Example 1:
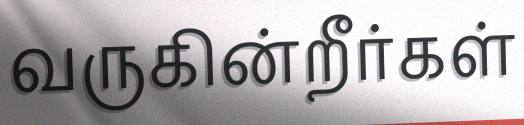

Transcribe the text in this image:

வருகின்றீர்கள்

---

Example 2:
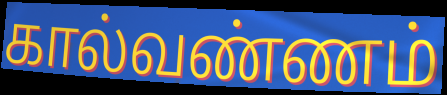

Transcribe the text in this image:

கால்வண்ணம்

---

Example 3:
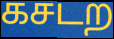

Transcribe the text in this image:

கசடற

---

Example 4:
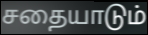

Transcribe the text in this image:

சதையாடும்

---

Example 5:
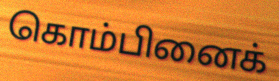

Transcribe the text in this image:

கொம்பினைக்